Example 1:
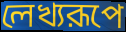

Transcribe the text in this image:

লেখ্যরূপে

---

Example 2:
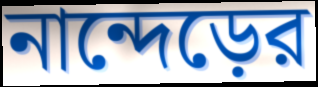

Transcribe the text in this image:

নান্দেড়ের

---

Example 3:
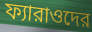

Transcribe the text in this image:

ফ্যারাওদের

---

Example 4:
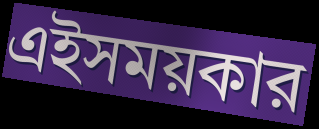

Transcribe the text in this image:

এইসময়কার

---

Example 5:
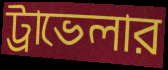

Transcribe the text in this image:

ট্রাভেলার